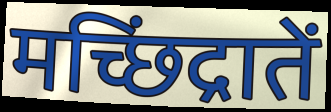
मच्छिंद्रातें